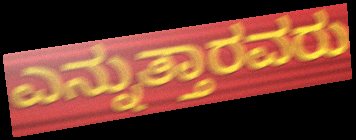
ಎನ್ನುತ್ತಾರವರು